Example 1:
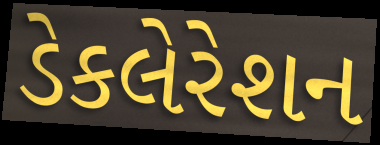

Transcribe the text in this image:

ડેકલેરેશન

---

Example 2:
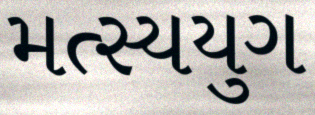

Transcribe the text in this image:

મત્સ્યયુગ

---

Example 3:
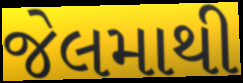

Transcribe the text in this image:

જેલમાથી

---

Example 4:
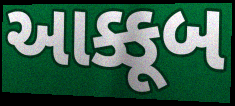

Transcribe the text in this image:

આક્કૂબ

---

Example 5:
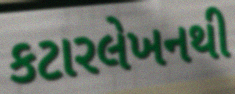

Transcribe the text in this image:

કટારલેખનથી